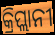
କ୍ରିପ୍ଲାନୀ